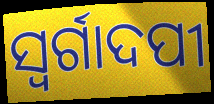
ସ୍ବର୍ଗାଦପୀ